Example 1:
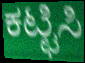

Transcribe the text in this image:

ಕಟ್ಟಿಸಿ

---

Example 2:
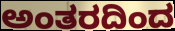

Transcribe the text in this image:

ಅಂತರದಿಂದ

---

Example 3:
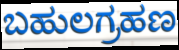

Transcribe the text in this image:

ಬಹುಲಗ್ರಹಣ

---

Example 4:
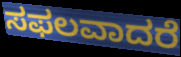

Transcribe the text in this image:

ಸಫಲವಾದರೆ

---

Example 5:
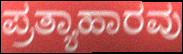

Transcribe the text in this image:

ಪ್ರತ್ಯಾಹಾರವು